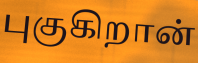
புகுகிறான்